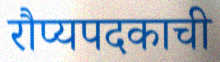
रौप्यपदकाची